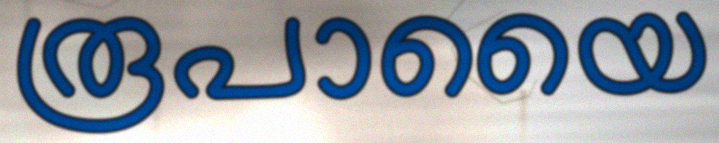
രൂപായൈ